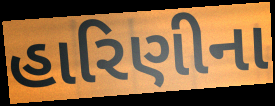
હારિણીના